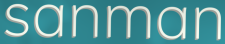
sanman